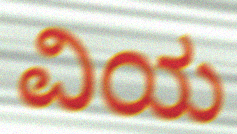
ವಿಯ